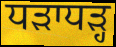
ਧੜਾਧੜ੍ਹ